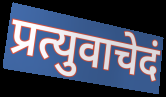
प्रत्युवाचेदं